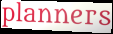
planners